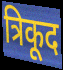
त्रिकूद